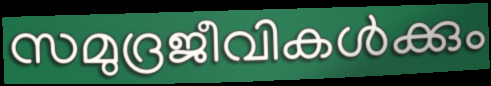
സമുദ്രജീവികൾക്കും